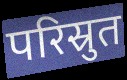
परिस्रुत